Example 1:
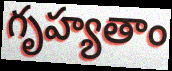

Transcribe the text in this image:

గృహ్యతాం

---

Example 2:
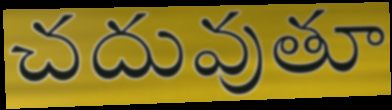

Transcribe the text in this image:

చదువుతూ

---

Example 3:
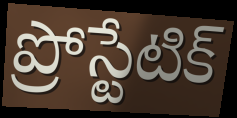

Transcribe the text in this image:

ప్రోస్టేటిక్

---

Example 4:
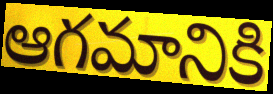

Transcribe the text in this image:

ఆగమానికి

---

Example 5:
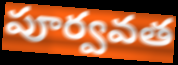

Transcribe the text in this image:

పూర్వవత